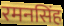
रमनसिंह